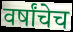
वर्षांचेच